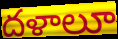
దళాలూ